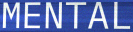
MENTAL